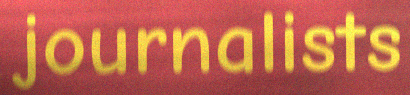
journalists